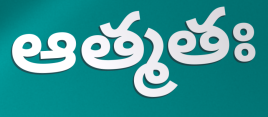
ఆత్మతః